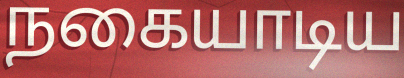
நகையாடிய